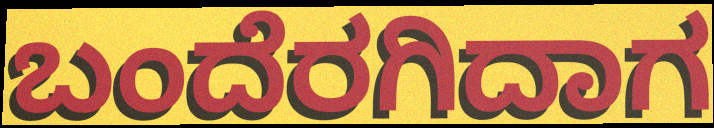
ಬಂದೆರಗಿದಾಗ